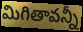
మిగితావన్నీ